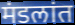
मंडलांत